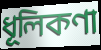
ধূলিকণা